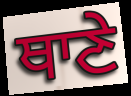
ਥਾਣੇ